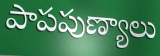
పాపపుణ్యాలు